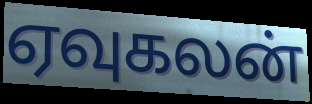
ஏவுகலன்